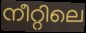
നീറ്റിലെ